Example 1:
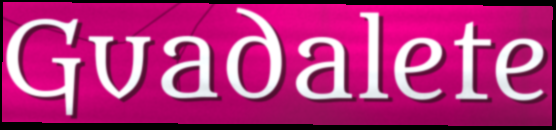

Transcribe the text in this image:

Guadalete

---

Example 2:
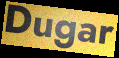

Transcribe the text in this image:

Dugar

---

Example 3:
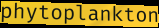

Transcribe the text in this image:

phytoplankton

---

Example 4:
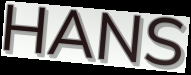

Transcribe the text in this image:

HANS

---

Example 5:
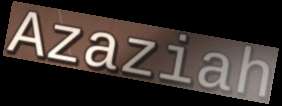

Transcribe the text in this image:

Azaziah